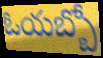
ఓయబ్బో